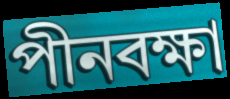
পীনবক্ষা